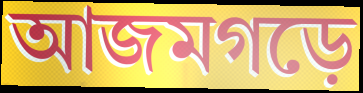
আজমগড়ে